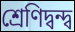
শ্রেণিদ্বন্দ্ব